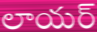
లాయర్